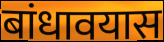
बांधावयास